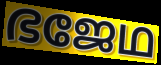
ഭജേഥ